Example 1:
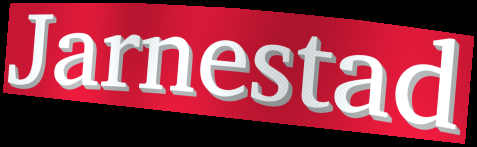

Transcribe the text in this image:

Jarnestad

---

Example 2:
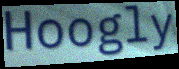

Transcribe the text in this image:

Hoogly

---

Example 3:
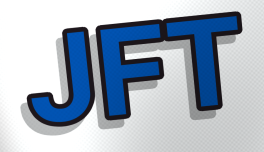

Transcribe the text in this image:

JFT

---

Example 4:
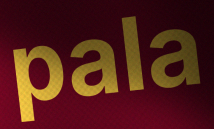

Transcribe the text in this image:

pala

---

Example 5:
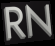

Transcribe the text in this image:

RN